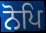
ਨੋਪਿ